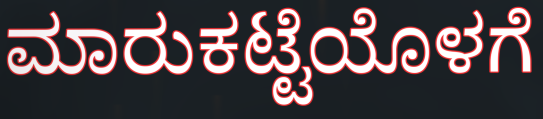
ಮಾರುಕಟ್ಟೆಯೊಳಗೆ